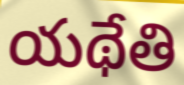
యథేతి